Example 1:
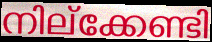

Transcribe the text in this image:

നില്ക്കേണ്ടി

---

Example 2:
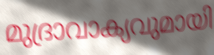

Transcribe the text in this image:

മുദ്രാവാക്യവുമായി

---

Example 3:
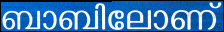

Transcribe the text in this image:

ബാബിലോണ്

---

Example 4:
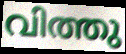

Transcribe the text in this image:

വിത്തു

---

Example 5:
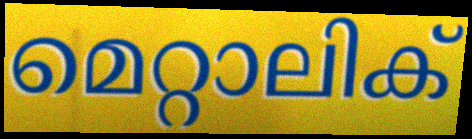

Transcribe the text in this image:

മെറ്റാലിക്